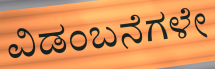
ವಿಡಂಬನೆಗಳೇ